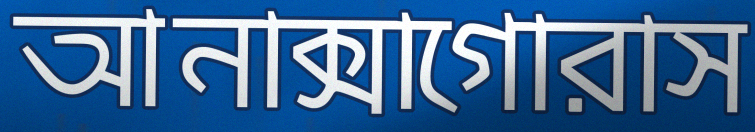
আনাক্সাগোরাস